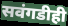
सवंगडीही